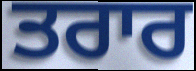
ਤਰਾਰ